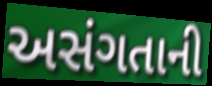
અસંગતાની